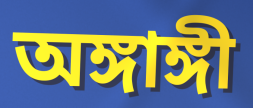
অঙ্গাঙ্গী